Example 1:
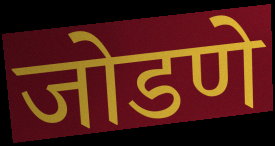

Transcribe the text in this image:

जोडणे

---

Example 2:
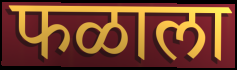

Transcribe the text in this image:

फळाला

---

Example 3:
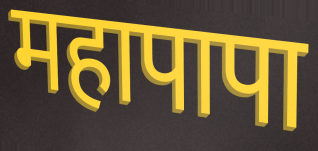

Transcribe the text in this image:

महापापा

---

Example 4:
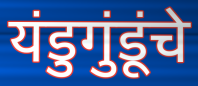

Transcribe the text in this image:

यंडुगुंडूंचे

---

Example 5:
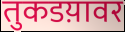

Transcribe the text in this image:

तुकडय़ावर